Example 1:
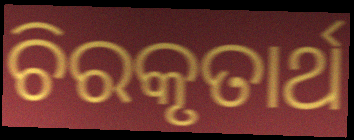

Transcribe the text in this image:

ଚିରକୃତାର୍ଥ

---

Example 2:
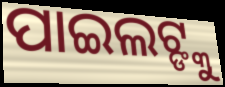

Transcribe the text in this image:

ପାଇଲଟ୍ଙ୍କୁ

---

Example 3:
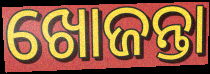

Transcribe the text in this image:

ଖୋଜନ୍ତା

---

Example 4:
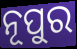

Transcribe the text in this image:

ନୂପୁର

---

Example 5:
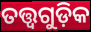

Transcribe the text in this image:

ତତ୍ତ୍ବଗୁଡ଼ିକ